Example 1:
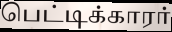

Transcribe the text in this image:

பெட்டிக்காரர்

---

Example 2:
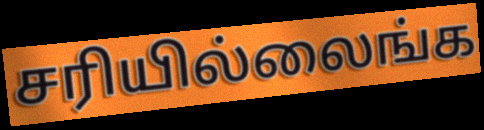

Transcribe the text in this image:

சரியில்லைங்க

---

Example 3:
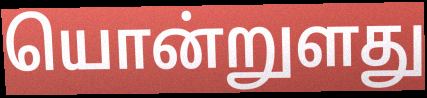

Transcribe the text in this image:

யொன்றுளது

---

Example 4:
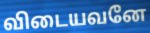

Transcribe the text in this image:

விடையவனே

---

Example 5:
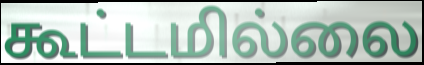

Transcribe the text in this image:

கூட்டமில்லை